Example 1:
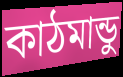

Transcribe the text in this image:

কাঠমান্ডু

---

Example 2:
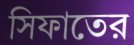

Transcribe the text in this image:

সিফাতের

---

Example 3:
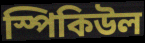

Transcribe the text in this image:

স্পিকিউল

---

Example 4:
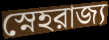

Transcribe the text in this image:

স্নেহরাজ্য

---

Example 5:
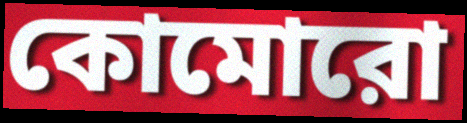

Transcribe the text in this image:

কোমোরো